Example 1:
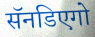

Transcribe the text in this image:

सॅनडिएगो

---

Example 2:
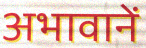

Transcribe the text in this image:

अभावानें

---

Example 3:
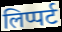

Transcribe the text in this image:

लिप्पर्ट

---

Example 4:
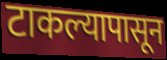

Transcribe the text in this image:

टाकल्यापासून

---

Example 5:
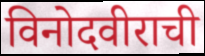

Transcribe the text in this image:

विनोदवीराची